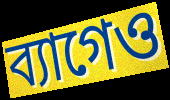
ব্যাগেও